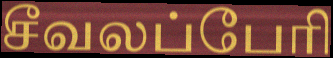
சீவலப்பேரி